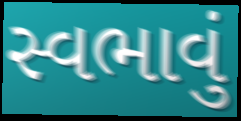
સ્વભાવું